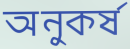
অনুকর্ষ